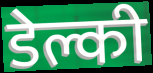
डेल्की